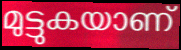
മുട്ടുകയാണ്